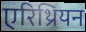
एरिथ्रियन